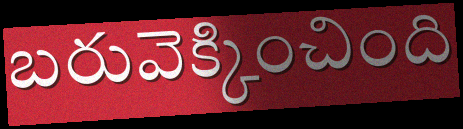
బరువెక్కించింది